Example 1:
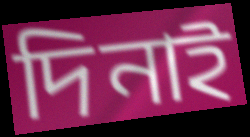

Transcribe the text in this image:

দিনাই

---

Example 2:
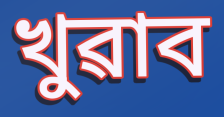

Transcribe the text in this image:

খুৱাব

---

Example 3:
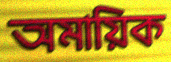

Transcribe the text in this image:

অমায়িক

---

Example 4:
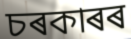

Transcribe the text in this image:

চৰকাৰৰ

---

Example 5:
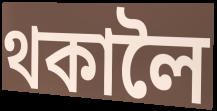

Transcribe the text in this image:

থকালৈ